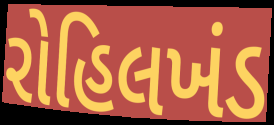
રોહિલખંડ